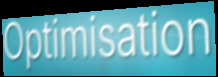
Optimisation